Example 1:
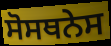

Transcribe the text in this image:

ਸੋਸਥਨੇਸ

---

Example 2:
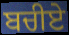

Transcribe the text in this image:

ਬਚੀਏ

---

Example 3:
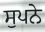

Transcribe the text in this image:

ਸੁਪਨੇ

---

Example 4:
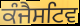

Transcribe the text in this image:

ਕੰਜੈਸਟਿਵ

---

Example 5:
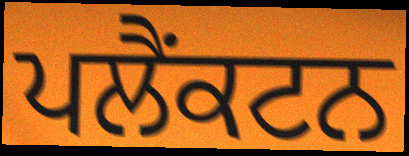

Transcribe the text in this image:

ਪਲੈਂਕਟਨ